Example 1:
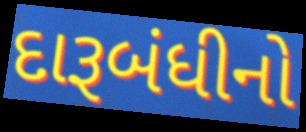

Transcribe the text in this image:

દારૂબંધીનો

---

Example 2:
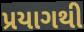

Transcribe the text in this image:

પ્રયાગથી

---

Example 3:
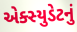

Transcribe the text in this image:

એક્સ્યુડેટનું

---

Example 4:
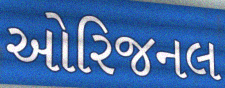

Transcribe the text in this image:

ઓરિજનલ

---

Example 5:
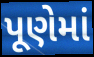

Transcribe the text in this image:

પૂણેમાં